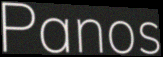
Panos